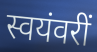
स्वयंवरीं